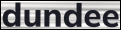
dundee